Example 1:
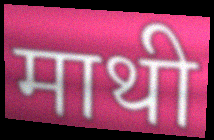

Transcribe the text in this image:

माथी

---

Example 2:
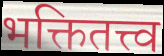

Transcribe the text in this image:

भक्तितत्त्व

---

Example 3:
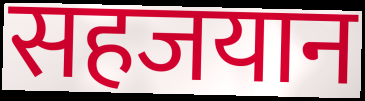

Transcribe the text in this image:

सहजयान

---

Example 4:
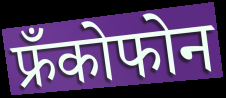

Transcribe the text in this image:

फ्रँकोफोन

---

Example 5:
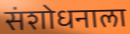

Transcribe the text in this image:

संशोधनाला